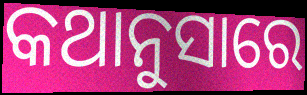
କଥାନୁସାରେ